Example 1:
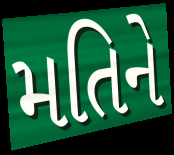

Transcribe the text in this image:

મતિને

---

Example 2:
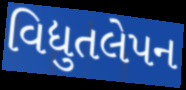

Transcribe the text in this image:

વિદ્યુતલેપન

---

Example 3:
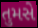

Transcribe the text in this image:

તુમસે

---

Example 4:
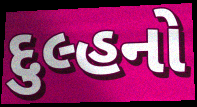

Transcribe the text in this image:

દુલ્હનો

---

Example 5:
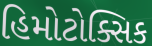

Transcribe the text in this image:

હિમોટોક્સિક